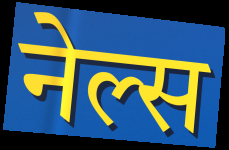
नेल्स